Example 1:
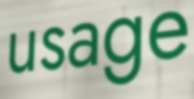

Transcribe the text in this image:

usage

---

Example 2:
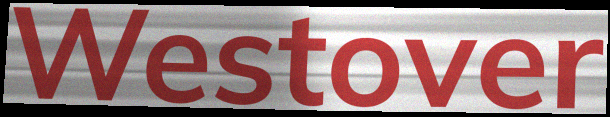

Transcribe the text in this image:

Westover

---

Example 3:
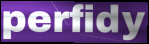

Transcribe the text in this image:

perfidy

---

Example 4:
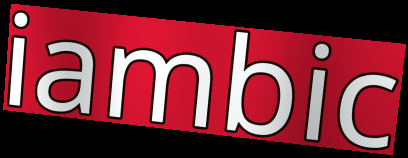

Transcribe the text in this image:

iambic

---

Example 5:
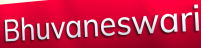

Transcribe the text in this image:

Bhuvaneswari